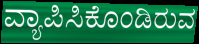
ವ್ಯಾಪಿಸಿಕೊಂಡಿರುವ